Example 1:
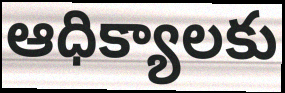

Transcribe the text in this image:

ఆధిక్యాలకు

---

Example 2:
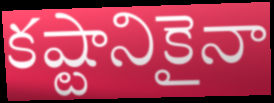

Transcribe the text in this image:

కష్టానికైనా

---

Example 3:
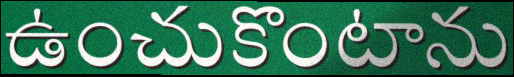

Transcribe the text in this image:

ఉంచుకొంటాను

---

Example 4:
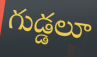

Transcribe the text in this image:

గుడ్డలూ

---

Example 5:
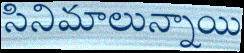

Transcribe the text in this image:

సినిమాలున్నాయి